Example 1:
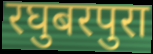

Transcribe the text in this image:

रघुबरपुरा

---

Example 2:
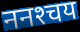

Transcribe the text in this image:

ननश्चय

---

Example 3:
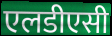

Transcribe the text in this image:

एलडीएसी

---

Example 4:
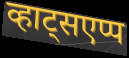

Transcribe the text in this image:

व्हाट्सएप्प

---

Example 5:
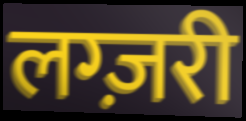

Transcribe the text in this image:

लग्ज़री